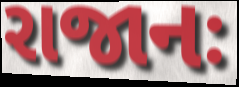
રાજાનઃ